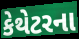
કેથેટરના